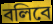
বলিবে